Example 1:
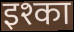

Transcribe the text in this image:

इश्का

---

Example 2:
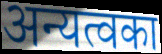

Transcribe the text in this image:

अन्यत्वका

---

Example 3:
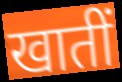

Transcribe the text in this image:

खातीं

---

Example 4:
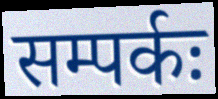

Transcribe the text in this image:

सम्पर्कः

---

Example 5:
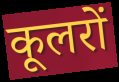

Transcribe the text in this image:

कूलरों